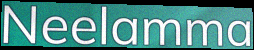
Neelamma